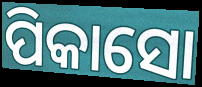
ପିକାସୋ